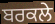
ਬਰਕਲੇ